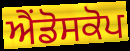
ਐਂਡੋਸਕੋਪ